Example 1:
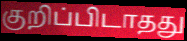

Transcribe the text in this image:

குறிப்பிடாதது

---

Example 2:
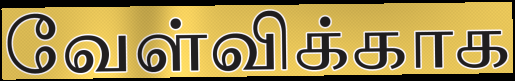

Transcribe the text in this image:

வேள்விக்காக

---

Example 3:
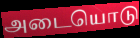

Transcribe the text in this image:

அடையொடு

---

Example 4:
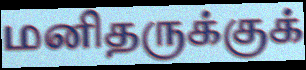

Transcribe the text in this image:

மனிதருக்குக்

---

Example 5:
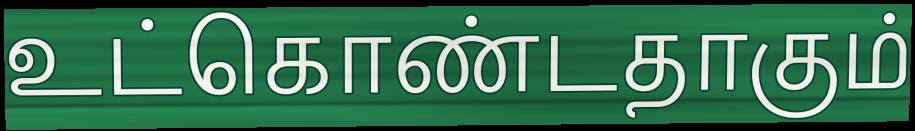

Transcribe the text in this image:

உட்கொண்டதாகும்